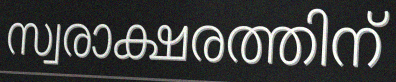
സ്വരാക്ഷരത്തിന്